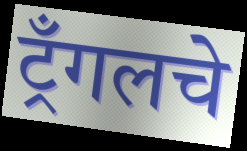
ट्रँगलचे